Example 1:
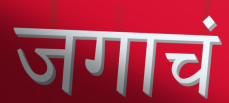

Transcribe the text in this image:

जगाचं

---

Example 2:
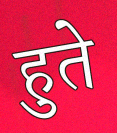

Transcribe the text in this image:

हुते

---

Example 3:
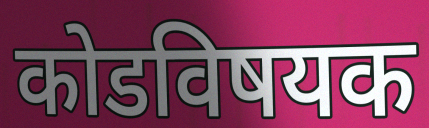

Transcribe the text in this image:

कोडविषयक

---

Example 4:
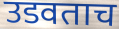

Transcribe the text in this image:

उडवताच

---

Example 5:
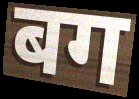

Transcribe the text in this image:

बग